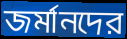
জর্মানদের